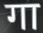
गा